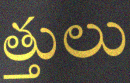
త్తులు